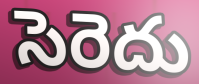
సెరెదు